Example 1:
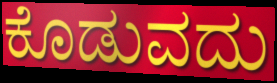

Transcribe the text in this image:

ಕೊಡುವದು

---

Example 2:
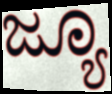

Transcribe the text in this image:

ಜ್ಯೂ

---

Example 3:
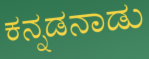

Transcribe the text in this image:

ಕನ್ನಡನಾಡು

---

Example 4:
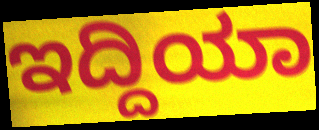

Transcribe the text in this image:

ಇದ್ದಿಯಾ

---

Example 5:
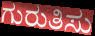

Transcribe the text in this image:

ಗುರುತಿಸು